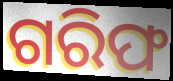
ଗରିଫ